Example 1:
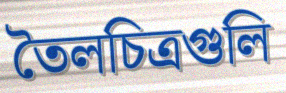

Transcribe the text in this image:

তৈলচিত্রগুলি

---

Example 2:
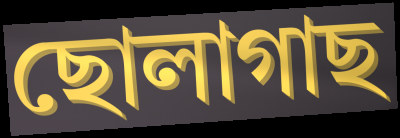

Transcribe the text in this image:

ছোলাগাছ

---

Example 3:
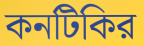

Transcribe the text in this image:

কনটিকির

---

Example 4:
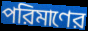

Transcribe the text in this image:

পরিমাণের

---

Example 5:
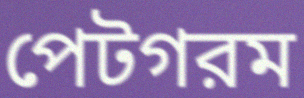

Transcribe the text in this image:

পেটগরম